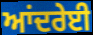
ਆਂਦਰੇਈ